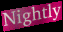
Nightly